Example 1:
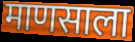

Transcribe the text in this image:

माणसाला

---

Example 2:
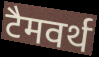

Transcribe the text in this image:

टैमवर्थ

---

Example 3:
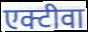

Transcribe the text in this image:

एक्टीवा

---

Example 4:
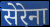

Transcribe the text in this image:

सेरेना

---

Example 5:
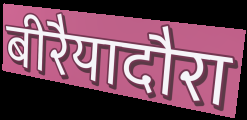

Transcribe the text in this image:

बीरैयादौरा